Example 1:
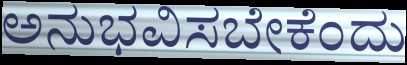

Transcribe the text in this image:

ಅನುಭವಿಸಬೇಕೆಂದು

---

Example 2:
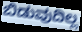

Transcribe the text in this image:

ಬಿಡುವುದಿಲ್ಲ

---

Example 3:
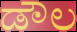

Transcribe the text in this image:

ಡೌಲ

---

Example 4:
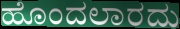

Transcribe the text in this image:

ಹೊಂದಲಾರದು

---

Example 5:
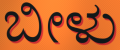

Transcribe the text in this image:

ಬೀಳು